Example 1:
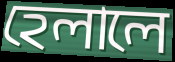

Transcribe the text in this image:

হেলালে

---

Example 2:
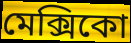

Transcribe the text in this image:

মেক্সিকো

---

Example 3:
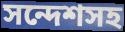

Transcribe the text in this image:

সন্দেশসহ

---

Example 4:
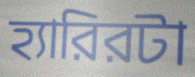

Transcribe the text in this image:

হ্যারিরটা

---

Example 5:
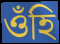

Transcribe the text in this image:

ওঁহি